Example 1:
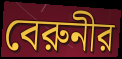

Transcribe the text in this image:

বেরুনীর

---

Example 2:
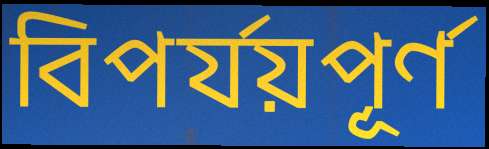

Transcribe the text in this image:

বিপর্যয়পূর্ণ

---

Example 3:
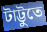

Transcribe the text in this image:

টাট্টুতে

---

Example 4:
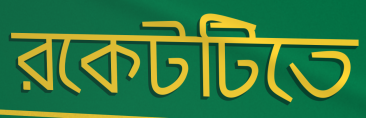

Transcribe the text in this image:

রকেটটিতে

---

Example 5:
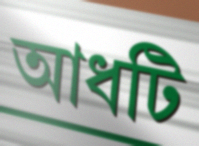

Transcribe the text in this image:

আধটি